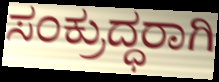
ಸಂಕ್ರುದ್ಧರಾಗಿ